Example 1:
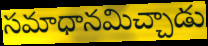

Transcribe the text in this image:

సమాధానమిచ్చాడు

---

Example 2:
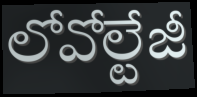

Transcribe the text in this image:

లోవోల్టేజీ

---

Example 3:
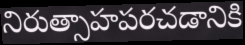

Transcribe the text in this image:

నిరుత్సాహపరచడానికి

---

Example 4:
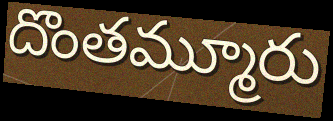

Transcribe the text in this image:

దొంతమ్మూరు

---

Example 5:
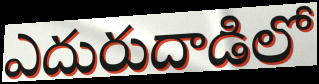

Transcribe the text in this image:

ఎదురుదాడిలో